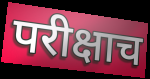
परीक्षाच